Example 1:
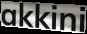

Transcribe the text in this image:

akkini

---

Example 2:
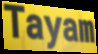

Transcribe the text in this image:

Tayam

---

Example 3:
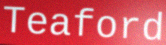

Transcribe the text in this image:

Teaford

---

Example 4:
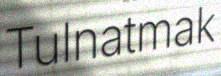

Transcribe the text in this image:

Tulnatmak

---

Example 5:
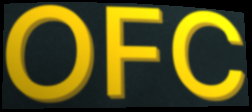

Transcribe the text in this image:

OFC